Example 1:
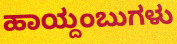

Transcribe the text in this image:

ಹಾಯ್ದಂಬುಗಳು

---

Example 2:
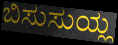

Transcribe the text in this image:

ಬಿಸುಸುಯ್ಲ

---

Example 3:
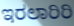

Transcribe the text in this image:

ಇರಲಾರಿರಿ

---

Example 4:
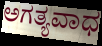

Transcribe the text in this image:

ಅಗತ್ಯವಾಧ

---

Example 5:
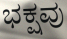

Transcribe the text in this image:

ಭಕ್ಷವು